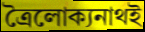
ত্রৈলোক্যনাথই